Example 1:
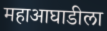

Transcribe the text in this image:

महाआघाडीला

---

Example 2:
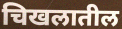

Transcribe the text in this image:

चिखलातील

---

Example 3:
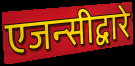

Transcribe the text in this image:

एजन्सीद्वारे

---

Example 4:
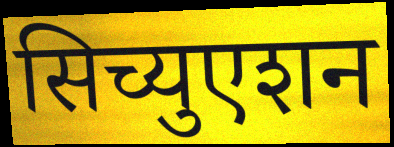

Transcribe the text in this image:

सिच्युएशन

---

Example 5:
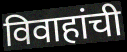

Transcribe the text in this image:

विवाहांची